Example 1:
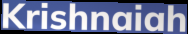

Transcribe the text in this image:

Krishnaiah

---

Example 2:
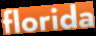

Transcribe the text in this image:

florida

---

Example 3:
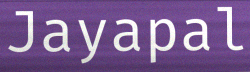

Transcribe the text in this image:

Jayapal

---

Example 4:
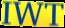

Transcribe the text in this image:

IWT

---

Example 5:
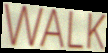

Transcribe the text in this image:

WALK